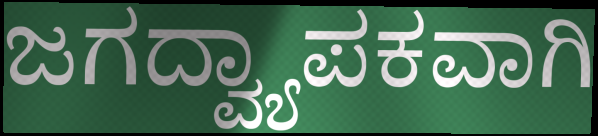
ಜಗದ್ವ್ಯಾಪಕವಾಗಿ